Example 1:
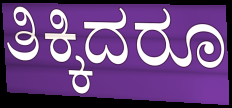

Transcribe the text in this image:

ತಿಕ್ಕಿದರೂ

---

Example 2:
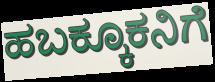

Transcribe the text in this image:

ಹಬಕ್ಕೂಕನಿಗೆ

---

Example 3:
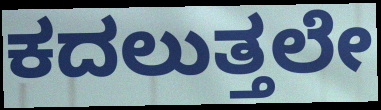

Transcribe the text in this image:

ಕದಲುತ್ತಲೇ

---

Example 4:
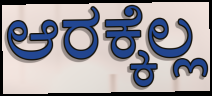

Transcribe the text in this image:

ಆರಕ್ಕೆಲ್ಲ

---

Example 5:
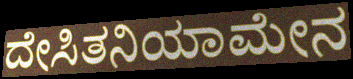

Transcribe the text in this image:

ದೇಸಿತನಿಯಾಮೇನ